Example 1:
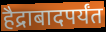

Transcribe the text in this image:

हैद्राबादपर्यंत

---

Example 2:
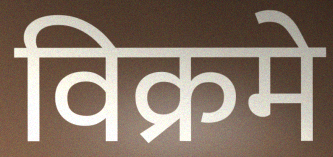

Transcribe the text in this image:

विक्रमे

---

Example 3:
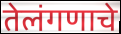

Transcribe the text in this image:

तेलंगणाचे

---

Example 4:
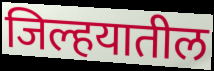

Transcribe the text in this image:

जिल्हयातील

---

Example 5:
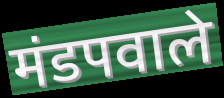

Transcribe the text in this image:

मंडपवाले